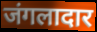
जंगलादार